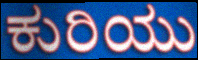
ಕುರಿಯು